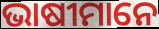
ଭାଷୀମାନେ